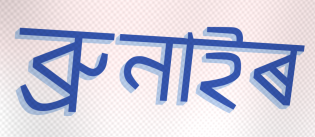
ব্ৰুনাইৰ